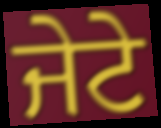
ਜੇਟੇ